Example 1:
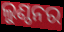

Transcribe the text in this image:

ଲୁଣ୍ଠନର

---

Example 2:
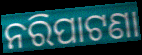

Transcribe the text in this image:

ନରିପାଟଣା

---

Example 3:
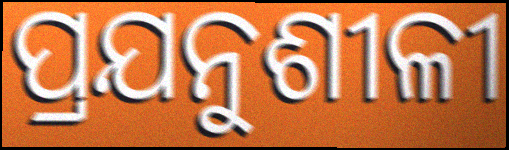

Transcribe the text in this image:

ପ୍ରଯନୁଶୀଳୀ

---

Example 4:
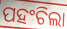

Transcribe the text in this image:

ପହଂଚିଲା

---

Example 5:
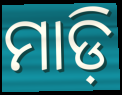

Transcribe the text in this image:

ମାଡ଼ି